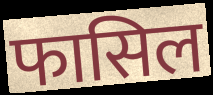
फासिल